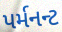
પર્મનન્ટ